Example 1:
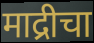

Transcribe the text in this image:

माद्रीचा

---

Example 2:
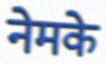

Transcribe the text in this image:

नेमके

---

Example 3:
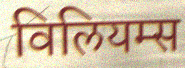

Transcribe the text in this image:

विलियम्स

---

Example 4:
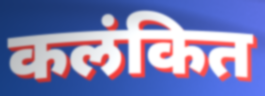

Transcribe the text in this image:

कलंकित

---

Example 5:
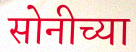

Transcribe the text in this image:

सोनीच्या